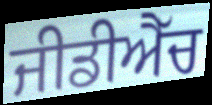
ਜੀਡੀਐੱਚ